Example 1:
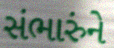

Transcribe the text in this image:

સંભારુંને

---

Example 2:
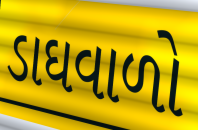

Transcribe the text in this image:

ડાઘવાળો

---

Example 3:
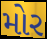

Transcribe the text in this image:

મોર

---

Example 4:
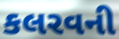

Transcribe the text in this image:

કલરવની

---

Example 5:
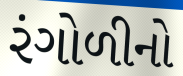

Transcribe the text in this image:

રંગોળીનો